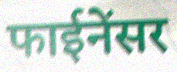
फाईनेंसर